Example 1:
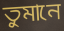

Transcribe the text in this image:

তুমানে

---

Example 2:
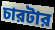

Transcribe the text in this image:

চারটার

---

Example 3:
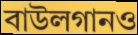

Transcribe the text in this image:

বাউলগানও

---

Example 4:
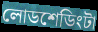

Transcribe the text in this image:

লোডশেডিংটা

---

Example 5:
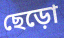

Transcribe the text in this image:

ছেড়ো